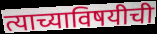
त्याच्याविषयीची